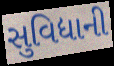
સુવિદ્યાની